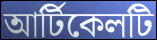
আর্টিকেলটি